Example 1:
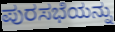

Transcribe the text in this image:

ಪುರಸಭೆಯನ್ನು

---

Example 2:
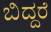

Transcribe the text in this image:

ಬಿದ್ದರೆ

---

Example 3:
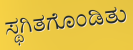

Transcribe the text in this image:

ಸ್ಥಗಿತಗೊಂಡಿತು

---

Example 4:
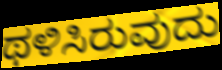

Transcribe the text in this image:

ಥಳಿಸಿರುವುದು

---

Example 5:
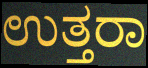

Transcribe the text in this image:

ಉತ್ತರಾ